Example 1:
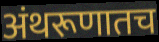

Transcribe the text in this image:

अंथरूणातच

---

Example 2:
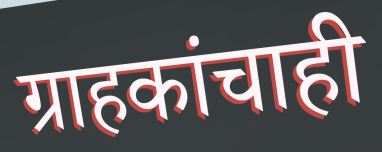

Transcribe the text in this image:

ग्राहकांचाही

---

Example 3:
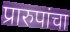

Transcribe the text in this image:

प्रारुपांचा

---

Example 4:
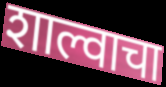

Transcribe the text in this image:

शाल्वाचा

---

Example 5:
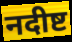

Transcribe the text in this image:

नदीष्ट